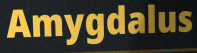
Amygdalus